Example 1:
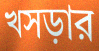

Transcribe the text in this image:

খসড়ার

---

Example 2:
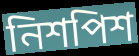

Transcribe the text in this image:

নিশপিশ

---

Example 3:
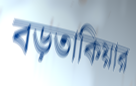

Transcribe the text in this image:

বড়তাকিয়ার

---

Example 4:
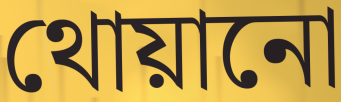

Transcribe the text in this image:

থোয়ানো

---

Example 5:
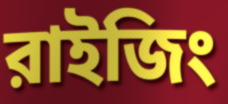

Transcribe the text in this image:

রাইজিং